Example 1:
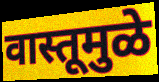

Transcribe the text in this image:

वास्तूमुळे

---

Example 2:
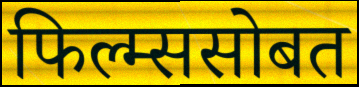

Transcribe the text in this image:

फिल्म्ससोबत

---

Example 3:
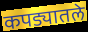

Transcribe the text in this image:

कपड्यातले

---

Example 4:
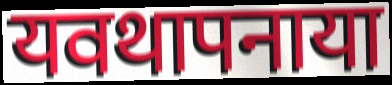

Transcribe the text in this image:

यवथापनाया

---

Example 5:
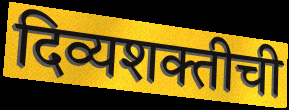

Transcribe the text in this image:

दिव्यशक्तीची